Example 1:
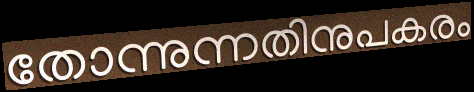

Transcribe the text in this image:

തോന്നുന്നതിനുപകരം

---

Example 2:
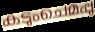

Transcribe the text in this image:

കടുംചെമപ്പു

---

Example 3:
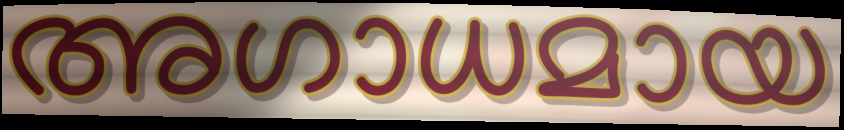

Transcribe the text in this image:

അഗാധമായ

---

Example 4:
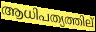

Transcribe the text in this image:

ആധിപത്യത്തില്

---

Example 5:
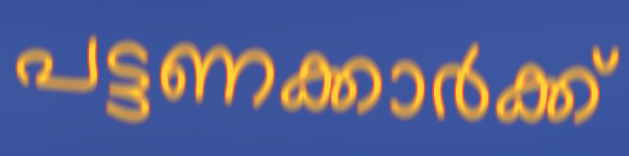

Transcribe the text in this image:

പട്ടണക്കാർക്ക്